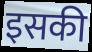
इसकी